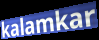
kalamkar